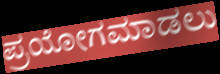
ಪ್ರಯೋಗಮಾಡಲು